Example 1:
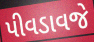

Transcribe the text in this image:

પીવડાવજે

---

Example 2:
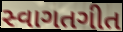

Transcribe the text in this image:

સ્વાગતગીત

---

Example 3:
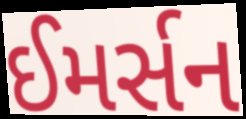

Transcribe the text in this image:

ઈમર્સન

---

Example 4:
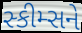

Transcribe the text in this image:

સ્કીમ્સને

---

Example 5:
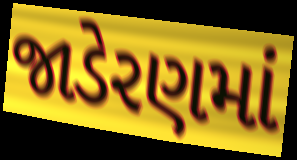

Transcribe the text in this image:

જાડેરણમાં